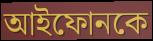
আইফোনকে